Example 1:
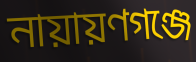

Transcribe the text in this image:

নায়ায়ণগঞ্জে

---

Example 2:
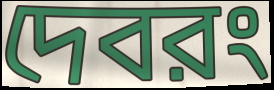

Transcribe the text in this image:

দেবরং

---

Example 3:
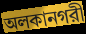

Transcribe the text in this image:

অলকানগরী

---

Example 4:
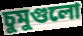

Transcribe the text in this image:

চুমুগুলো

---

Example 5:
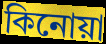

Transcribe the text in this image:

কিনোয়া